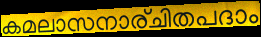
കമലാസനാര്ചിതപദാം